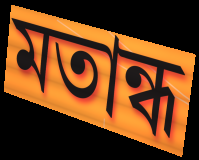
মতান্ধ